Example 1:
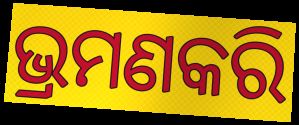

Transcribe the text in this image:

ଭ୍ରମଣକରି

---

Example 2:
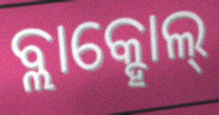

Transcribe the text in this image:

ବ୍ଲାକ୍ହୋଲ୍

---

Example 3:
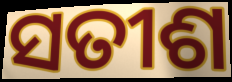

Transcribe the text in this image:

ସତୀଶ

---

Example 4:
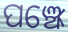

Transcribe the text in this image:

ପଞ୍ଝେ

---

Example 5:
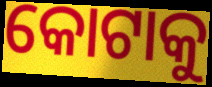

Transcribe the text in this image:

କୋଟାକୁ